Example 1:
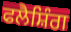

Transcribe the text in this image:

ਫਲੈਸ਼ਿੰਗ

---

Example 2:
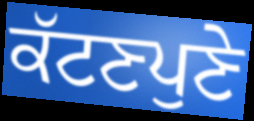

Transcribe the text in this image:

ਕੱਟਣਪੁਣੇ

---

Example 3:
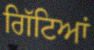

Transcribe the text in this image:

ਗਿੱਟਿਆਂ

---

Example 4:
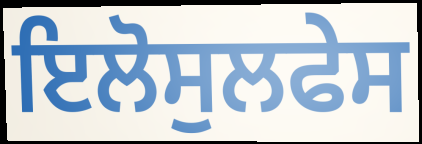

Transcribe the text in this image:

ਇਲੋਸੁਲਫੇਸ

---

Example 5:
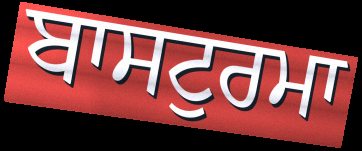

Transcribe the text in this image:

ਬਾਸਟੁਰਮਾ